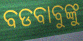
ବଡବାବୁଙ୍କୁ